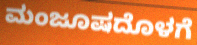
ಮಂಜೂಷದೊಳಗೆ